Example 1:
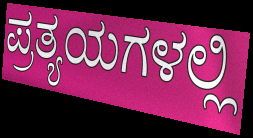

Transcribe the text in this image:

ಪ್ರತ್ಯಯಗಳಲ್ಲಿ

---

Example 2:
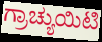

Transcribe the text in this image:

ಗ್ರಾಚ್ಯುಯಿಟಿ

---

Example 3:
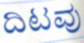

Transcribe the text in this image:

ದಿಟವು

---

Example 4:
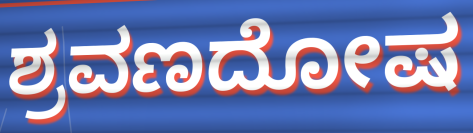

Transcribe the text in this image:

ಶ್ರವಣದೋಷ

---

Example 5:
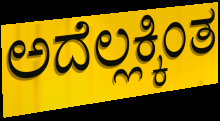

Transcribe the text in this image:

ಅದೆಲ್ಲಕ್ಕಿಂತ